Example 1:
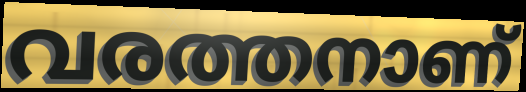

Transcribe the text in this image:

വരത്തനാണ്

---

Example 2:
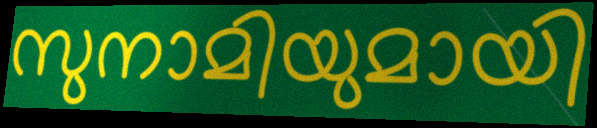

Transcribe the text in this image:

സുനാമിയുമായി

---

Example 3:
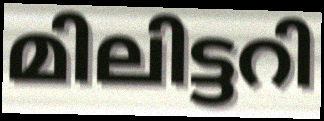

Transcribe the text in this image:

മിലിട്ടറി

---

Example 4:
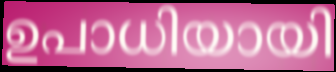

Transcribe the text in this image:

ഉപാധിയായി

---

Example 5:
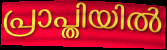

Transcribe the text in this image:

പ്രാപ്തിയിൽ